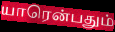
யாரென்பதும்